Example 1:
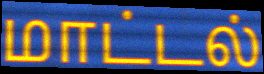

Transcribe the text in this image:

மாட்டல்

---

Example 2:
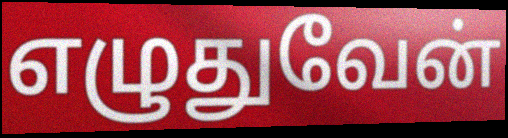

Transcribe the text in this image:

எழுதுவேன்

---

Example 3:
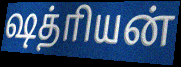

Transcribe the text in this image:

ஷத்ரியன்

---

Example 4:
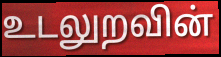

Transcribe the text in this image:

உடலுறவின்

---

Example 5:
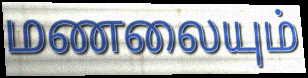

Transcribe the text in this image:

மணலையும்